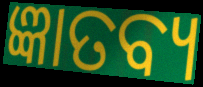
ଜ୍ଞାତବ୍ୟ